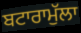
ਬਟਾਰਾਮੁੱਲਾ